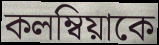
কলম্বিয়াকে